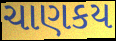
ચાણકય